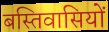
बस्तिवासियों